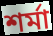
শৰ্মা